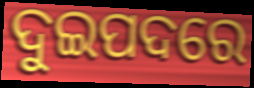
ଦୁଇପଦରେ